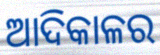
ଆଦିକାଳର